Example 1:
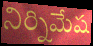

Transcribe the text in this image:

నిర్నిమేష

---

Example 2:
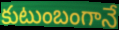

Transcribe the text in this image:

కుటుంబంగానే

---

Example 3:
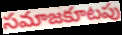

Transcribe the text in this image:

సమాజకూటపు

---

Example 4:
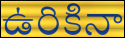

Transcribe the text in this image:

ఉరికినా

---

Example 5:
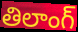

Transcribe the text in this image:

తిలాంగ్